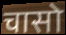
चासो